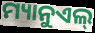
ମ୍ୟାନୁଏଲ୍